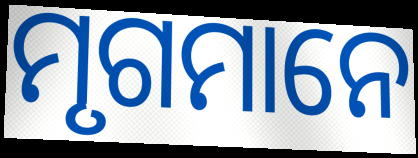
ମୃଗମାନେ